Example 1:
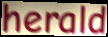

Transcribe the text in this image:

herald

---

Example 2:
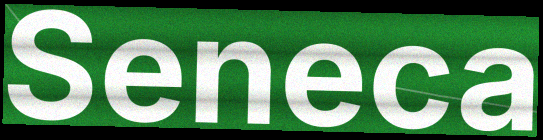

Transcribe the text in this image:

Seneca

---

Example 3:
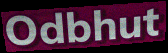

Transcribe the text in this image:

Odbhut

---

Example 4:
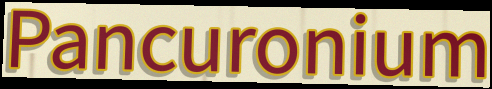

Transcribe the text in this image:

Pancuronium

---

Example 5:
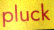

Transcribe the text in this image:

pluck